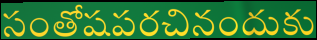
సంతోషపరచినందుకు